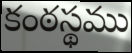
కంఠస్థము